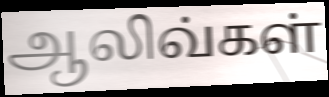
ஆலிவ்கள்